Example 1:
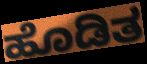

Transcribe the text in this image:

ಹೊಡಿತ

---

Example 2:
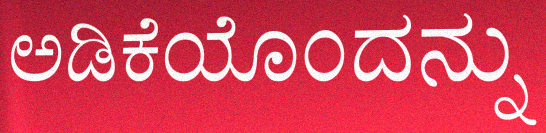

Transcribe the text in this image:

ಅಡಿಕೆಯೊಂದನ್ನು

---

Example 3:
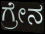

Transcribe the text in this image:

ಗ್ರೇನ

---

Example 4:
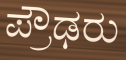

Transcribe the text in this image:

ಪ್ರೌಢರು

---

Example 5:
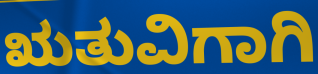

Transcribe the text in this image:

ಋತುವಿಗಾಗಿ